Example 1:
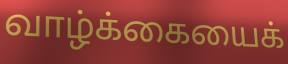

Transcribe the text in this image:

வாழ்க்கையைக்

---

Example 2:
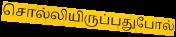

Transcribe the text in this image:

சொல்லியிருப்பதுபோல்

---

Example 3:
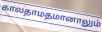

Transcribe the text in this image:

காலதாமதமானாலும்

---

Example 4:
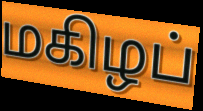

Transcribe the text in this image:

மகிழப்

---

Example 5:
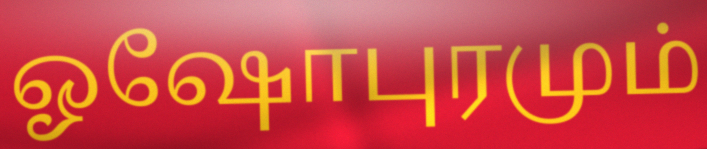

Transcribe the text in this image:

ஓஷோபுரமும்